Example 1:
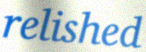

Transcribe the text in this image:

relished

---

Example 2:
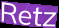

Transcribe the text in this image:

Retz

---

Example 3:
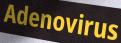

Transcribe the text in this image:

Adenovirus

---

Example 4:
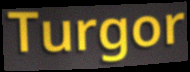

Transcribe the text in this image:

Turgor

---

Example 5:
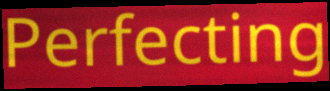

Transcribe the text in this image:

Perfecting